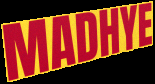
MADHYE